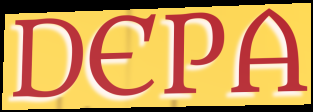
DEPA